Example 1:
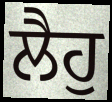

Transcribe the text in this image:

ਲੈਹੁ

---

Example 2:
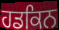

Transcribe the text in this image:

ਹਡਕਿਨ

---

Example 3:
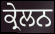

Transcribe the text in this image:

ਕ੍ਰੇਲਨ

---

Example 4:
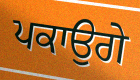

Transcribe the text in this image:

ਪਕਾਉਗੇ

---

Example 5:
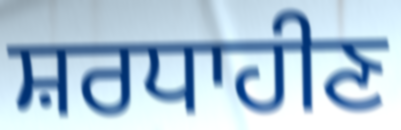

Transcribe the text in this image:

ਸ਼ਰਧਾਹੀਣ